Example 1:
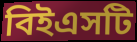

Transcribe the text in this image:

বিইএসটি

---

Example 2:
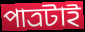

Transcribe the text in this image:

পাত্রটাই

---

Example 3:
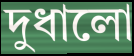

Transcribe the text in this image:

দুধালো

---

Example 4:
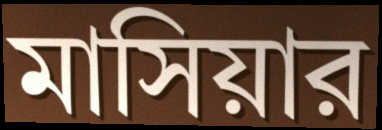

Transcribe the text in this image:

মাসিয়ার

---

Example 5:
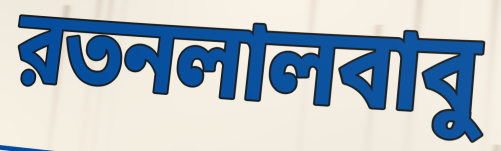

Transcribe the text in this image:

রতনলালবাবু